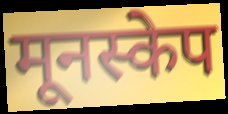
मूनस्केप